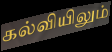
கல்வியிலும்